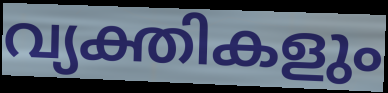
വ്യക്തികളും